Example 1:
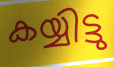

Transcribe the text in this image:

കയ്യിട്ടു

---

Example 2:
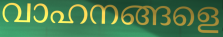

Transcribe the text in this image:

വാഹനങ്ങളെ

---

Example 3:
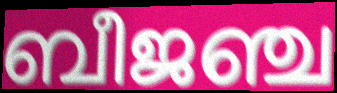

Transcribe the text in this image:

ബീജഞ്ച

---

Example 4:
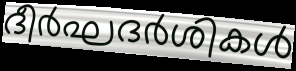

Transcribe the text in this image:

ദീർഘദർശികൾ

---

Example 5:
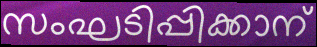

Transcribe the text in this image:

സംഘടിപ്പിക്കാന്